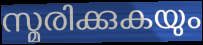
സ്മരിക്കുകയും